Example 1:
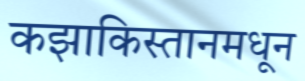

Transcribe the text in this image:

कझाकिस्तानमधून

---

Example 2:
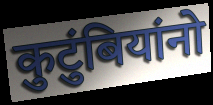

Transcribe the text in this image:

कुटुंबियांनो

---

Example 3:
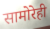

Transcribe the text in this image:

सामोरेही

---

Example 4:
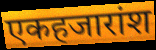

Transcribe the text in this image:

एकहजारांश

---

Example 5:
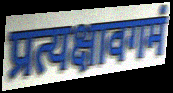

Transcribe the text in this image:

प्रत्यक्षावगमं